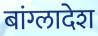
बांग्लादेश